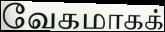
வேகமாகக்